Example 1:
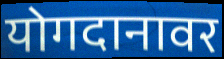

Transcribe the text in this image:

योगदानावर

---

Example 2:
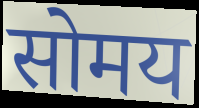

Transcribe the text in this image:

सोमय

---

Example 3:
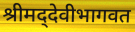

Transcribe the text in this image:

श्रीमद्‌देवीभागवत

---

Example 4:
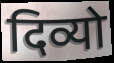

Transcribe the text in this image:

दिव्यो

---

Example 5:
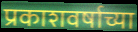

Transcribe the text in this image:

प्रकाशवर्षाच्या